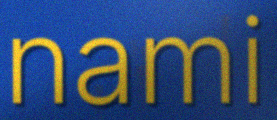
nami